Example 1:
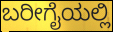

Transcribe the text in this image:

ಬರೀಗೈಯಲ್ಲಿ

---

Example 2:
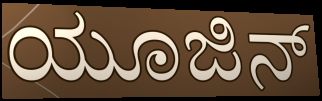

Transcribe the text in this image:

ಯೂಜಿನ್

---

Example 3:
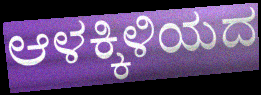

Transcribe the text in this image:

ಆಳಕ್ಕಿಳಿಯದ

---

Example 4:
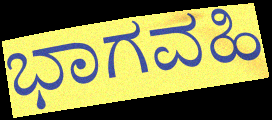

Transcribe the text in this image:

ಭಾಗವಹಿ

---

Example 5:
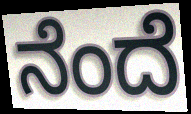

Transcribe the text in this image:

ನೆಂದೆ